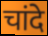
चांदे